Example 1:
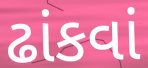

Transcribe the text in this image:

ઢાંકવાં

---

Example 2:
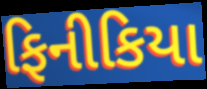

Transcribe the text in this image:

ફિનીકિયા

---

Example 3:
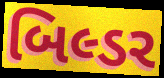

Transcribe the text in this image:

બિલ્ડર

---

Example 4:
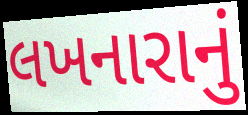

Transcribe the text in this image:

લખનારાનું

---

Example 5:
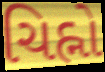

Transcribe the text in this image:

ચિહ્નો